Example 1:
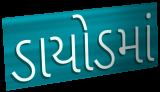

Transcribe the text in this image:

ડાયોડમાં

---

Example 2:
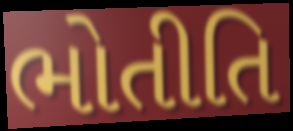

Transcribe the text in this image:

ભોતીતિ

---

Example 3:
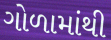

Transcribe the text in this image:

ગોળામાંથી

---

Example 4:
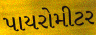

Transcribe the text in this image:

પાયરોમીટર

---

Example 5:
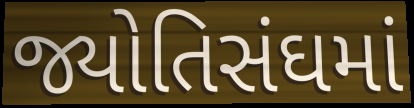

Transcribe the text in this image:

જ્યોતિસંઘમાં